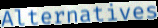
Alternatives